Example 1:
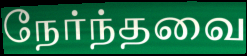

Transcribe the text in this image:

நேர்ந்தவை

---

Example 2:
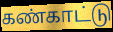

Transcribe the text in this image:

கண்காட்டு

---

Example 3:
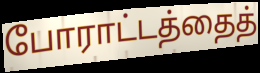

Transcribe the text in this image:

போராட்டத்தைத்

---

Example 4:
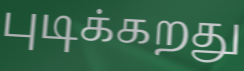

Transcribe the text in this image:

புடிக்கறது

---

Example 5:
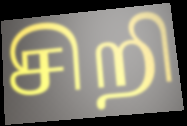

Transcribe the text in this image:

சிறி